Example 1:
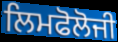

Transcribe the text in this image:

ਲਿਮਫੋਲੋਜੀ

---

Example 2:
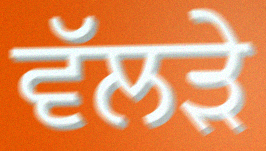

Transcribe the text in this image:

ਵੱਲੜੇ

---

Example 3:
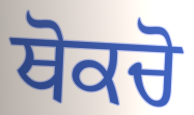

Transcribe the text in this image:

ਥੋਕਚੋ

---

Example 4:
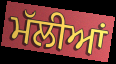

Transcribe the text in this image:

ਮੱਲੀਆਂ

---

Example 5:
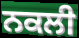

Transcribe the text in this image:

ਨਕਲੀ